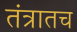
तंत्रातच